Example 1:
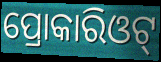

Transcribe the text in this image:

ପ୍ରୋକାରିଓଟ୍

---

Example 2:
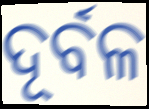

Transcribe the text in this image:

ଦୂର୍ବଳ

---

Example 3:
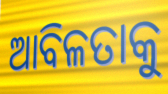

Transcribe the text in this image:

ଆବିଳତାକୁ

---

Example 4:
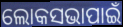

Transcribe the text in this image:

ଲୋକସଭାପାଇଁ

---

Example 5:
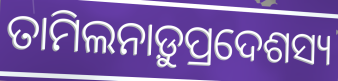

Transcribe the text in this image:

ତାମିଲନାଡ଼ୁପ୍ରଦେଶସ୍ୟ